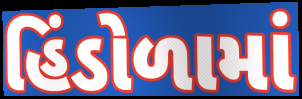
હિંડોળામાં